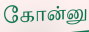
கோன்னு